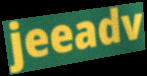
jeeadv